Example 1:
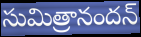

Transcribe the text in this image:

సుమిత్రానందన్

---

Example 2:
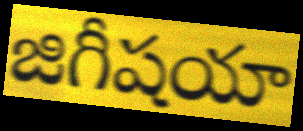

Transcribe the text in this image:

జిగీషయా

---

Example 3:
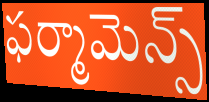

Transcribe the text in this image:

ఫర్మామెన్స్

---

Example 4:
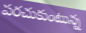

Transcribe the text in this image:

పరచుకుంటున్న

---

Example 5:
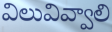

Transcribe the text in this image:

విలువివ్వాలి